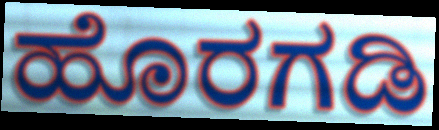
ಹೊರಗಡಿ